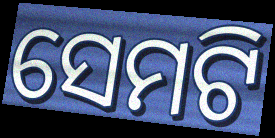
ସେମଟି